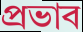
প্ৰভাব